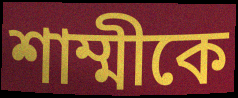
শাম্মীকে